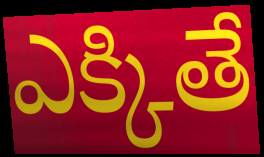
ఎక్కితే